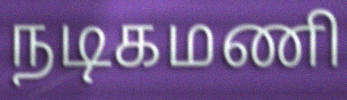
நடிகமணி